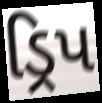
ડ્રિપ